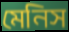
মেনিস